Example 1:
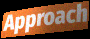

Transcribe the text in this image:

Approach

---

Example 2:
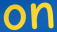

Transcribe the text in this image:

on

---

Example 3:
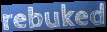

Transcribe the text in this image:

rebuked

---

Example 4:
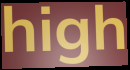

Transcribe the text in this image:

high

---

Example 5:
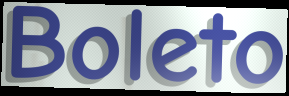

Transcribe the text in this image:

Boleto